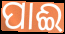
ପାଈ